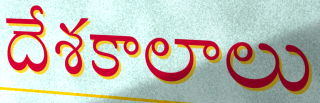
దేశకాలాలు